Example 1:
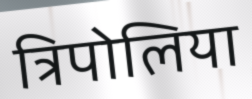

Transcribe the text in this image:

त्रिपोलिया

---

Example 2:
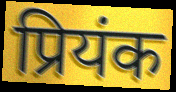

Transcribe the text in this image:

प्रियंक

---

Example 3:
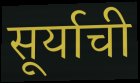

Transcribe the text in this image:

सूर्याची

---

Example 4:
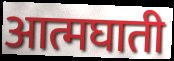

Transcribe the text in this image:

आत्मघाती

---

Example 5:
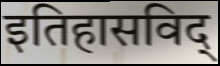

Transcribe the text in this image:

इतिहासविद्